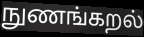
நுணங்கறல்